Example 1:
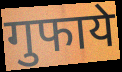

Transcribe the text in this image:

गुफाये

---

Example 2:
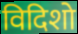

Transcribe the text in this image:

विदिशो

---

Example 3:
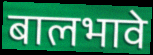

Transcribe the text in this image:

बालभावे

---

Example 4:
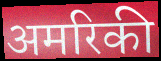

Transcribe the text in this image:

अमरिकी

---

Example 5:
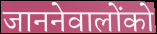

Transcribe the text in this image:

जाननेवालोंको